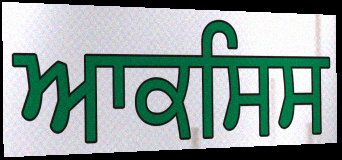
ਆਕਸਿਸ